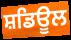
ਸ਼ਡਿਊਲ